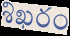
శిఖరం